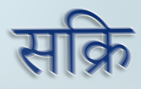
सक्रि